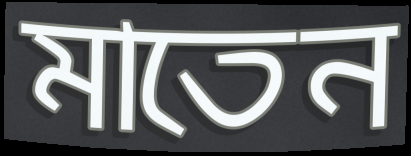
মাতেন